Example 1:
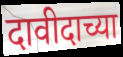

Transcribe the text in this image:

दावीदाच्या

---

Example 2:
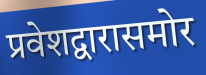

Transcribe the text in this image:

प्रवेशद्वारासमोर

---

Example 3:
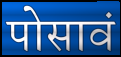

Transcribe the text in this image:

पोसावं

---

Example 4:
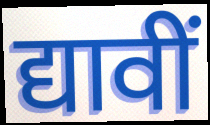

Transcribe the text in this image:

द्यावीं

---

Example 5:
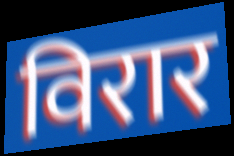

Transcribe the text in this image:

विरार